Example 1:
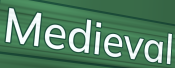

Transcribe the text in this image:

Medieval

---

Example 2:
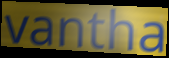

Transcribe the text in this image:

vantha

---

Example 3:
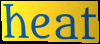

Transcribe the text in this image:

heat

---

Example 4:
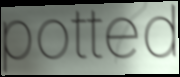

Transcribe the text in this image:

potted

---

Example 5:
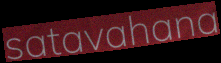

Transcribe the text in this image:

satavahana